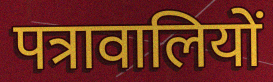
पत्रावालियों